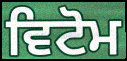
ਵਿਟੋਮ